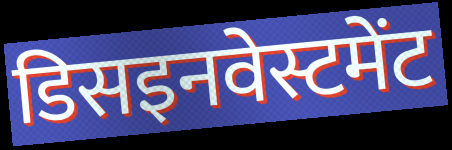
डिसइनवेस्टमेंट